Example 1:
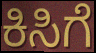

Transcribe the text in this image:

ಕಿಸಿಗೆ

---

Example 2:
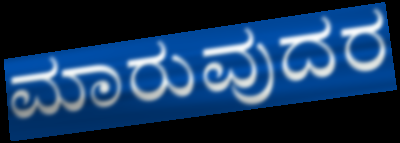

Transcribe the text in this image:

ಮಾರುವುದರ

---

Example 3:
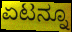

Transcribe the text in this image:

ಏಟನ್ನೂ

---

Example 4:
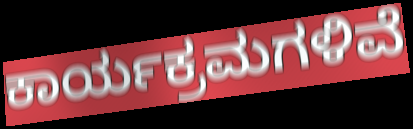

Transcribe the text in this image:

ಕಾರ್ಯಕ್ರಮಗಳಿವೆ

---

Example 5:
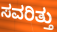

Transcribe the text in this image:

ಸವರಿತ್ತು